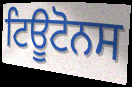
ਟਿਊਟੋਨਸ